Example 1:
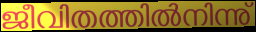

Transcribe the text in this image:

ജീവിതത്തിൽനിന്നു്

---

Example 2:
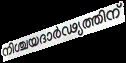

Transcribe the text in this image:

നിശ്ചയദാർഢ്യത്തിന്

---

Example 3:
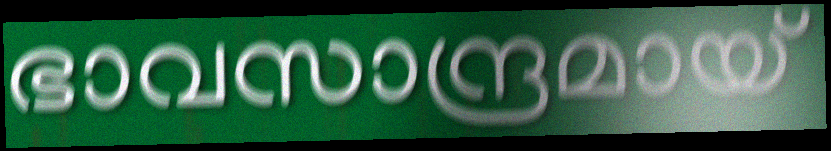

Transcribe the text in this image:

ഭാവസാന്ദ്രമായ്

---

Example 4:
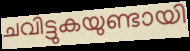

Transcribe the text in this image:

ചവിട്ടുകയുണ്ടായി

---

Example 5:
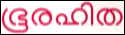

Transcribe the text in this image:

ഭൂരഹിത